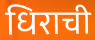
धिराची